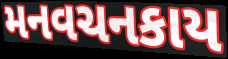
મનવચનકાય